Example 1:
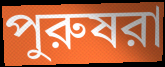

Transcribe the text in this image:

পুরুষরা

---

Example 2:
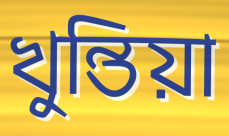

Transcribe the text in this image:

খুন্তিয়া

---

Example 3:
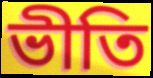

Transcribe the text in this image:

ভীতি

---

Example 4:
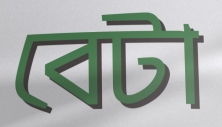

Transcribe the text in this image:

বেটা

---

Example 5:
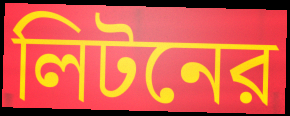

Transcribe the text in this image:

লিটনের